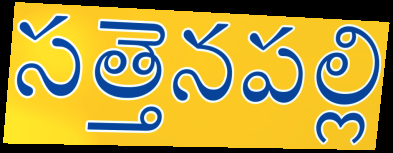
సత్తెనపల్లి